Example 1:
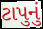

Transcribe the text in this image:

ટાપુનું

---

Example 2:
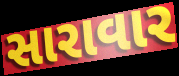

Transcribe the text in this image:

સારાવાર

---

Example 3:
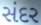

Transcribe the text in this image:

સંદર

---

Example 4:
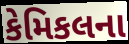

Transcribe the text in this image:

કેમિકલના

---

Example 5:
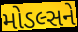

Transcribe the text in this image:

મોડલ્સને